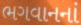
ભગવાનનાં